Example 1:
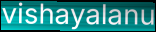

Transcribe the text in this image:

vishayalanu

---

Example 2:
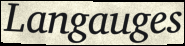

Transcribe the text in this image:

Langauges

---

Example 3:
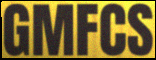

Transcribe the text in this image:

GMFCS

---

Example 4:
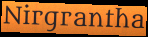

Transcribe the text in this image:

Nirgrantha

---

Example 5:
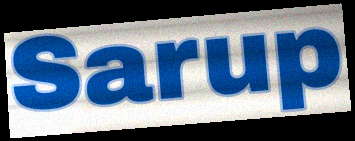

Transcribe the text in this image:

Sarup